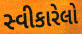
સ્વીકારેલો